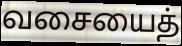
வசையைத்